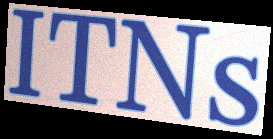
ITNs